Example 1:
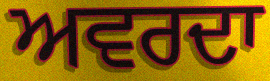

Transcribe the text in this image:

ਅਵਰਦਾ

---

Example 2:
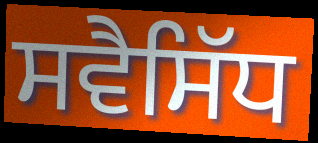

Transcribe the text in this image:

ਸਵੈਸਿੱਧ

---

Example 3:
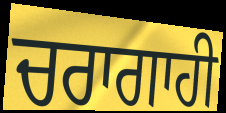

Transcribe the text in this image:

ਚਰਾਗਾਹੀ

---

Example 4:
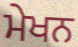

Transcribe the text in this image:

ਮੇਖਨ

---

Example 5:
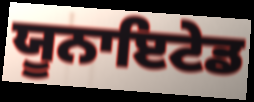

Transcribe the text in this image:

ਯੂਨਾਇਟੇਡ